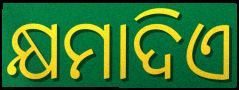
କ୍ଷମାଦିଏ